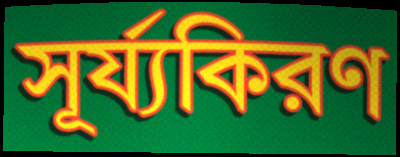
সূর্য্যকিরণ